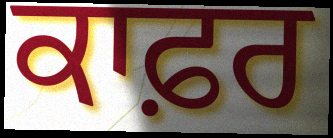
ਕਾਫ਼ਰ